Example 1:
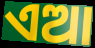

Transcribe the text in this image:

ଏଆ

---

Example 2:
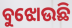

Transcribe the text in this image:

ବୁଝୋଉଛି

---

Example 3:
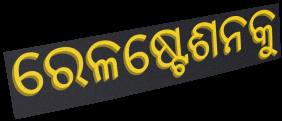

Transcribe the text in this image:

ରେଳଷ୍ଟେଶନକୁ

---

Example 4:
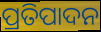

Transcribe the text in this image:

ପ୍ରତିପାଦନ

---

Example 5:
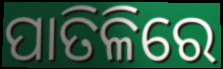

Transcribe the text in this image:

ପାତିଳିରେ